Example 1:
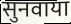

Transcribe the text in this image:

सुनवाया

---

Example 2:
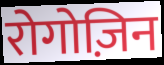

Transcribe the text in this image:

रोगोज़िन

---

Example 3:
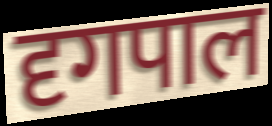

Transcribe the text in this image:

दृगपाल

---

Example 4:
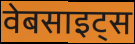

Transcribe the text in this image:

वेबसाइट्स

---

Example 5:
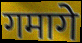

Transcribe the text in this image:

गमागे